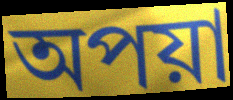
অপয়া